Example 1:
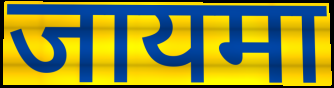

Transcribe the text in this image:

जायमा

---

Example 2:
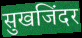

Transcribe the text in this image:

सुखजिंदर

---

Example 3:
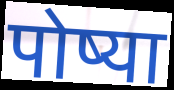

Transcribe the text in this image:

पोष्या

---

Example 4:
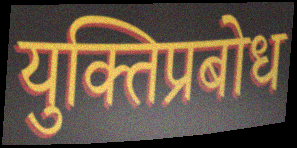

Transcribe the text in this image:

युक्तिप्रबोध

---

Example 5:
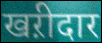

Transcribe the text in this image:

खऱीदार